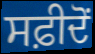
ਸਫ਼ੀਦੋਂ